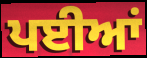
ਪਈਆਂ